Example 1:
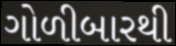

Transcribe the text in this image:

ગોળીબારથી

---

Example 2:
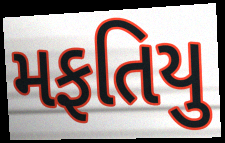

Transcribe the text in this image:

મફતિયુ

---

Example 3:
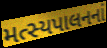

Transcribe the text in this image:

મત્સ્યપાલનનાં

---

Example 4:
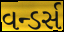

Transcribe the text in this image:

વન્ડર્સ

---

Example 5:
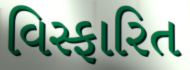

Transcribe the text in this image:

વિસ્ફારિત